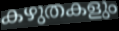
കഴുതകളും